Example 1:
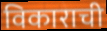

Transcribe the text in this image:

विकाराची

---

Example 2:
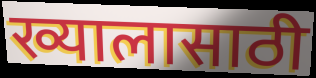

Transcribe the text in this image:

ख्यालासाठी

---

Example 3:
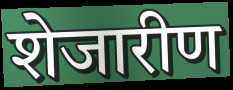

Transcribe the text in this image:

शेजारीण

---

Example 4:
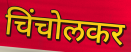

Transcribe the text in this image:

चिंचोलकर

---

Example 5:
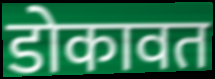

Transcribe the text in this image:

डोकावत